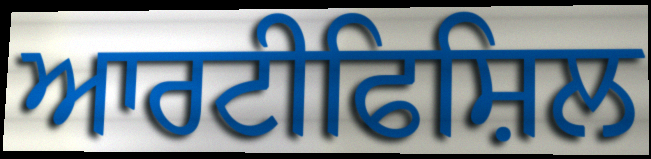
ਆਰਟੀਫਿਸ਼ਿਲ